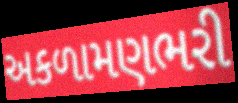
અકળામણભરી